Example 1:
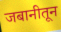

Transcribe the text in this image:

जबानीतून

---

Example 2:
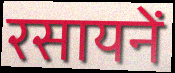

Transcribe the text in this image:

रसायनें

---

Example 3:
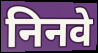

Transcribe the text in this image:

निनवे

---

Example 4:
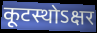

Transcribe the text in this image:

कूटस्थोऽक्षर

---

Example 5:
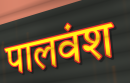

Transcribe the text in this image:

पालवंश